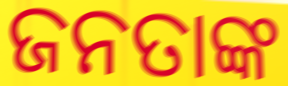
ଜନତାଙ୍କ